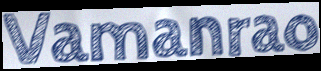
Vamanrao